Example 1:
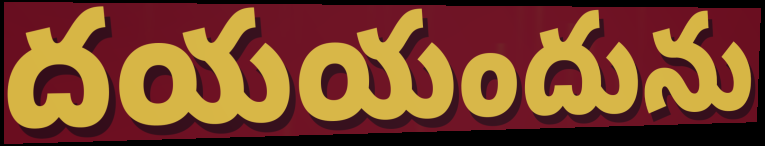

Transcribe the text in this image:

దయయందును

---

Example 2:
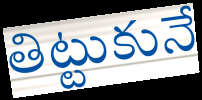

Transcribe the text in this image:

తిట్టుకునే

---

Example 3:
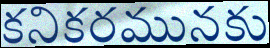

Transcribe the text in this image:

కనికరమునకు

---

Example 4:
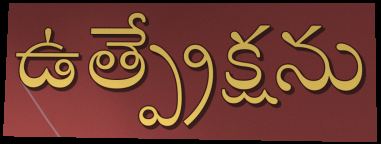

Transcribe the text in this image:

ఉత్ప్రేక్షను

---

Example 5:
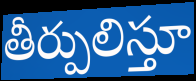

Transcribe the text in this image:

తీర్పులిస్తూ